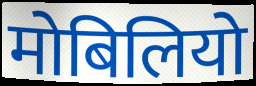
मोबिलियो